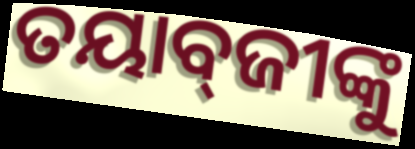
ତୟାବ୍‌ଜୀଙ୍କୁ